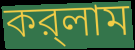
কর্‌লাম